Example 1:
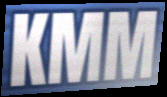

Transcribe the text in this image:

KMM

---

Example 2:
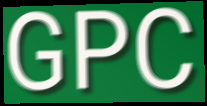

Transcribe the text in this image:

GPC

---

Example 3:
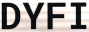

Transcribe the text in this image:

DYFI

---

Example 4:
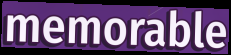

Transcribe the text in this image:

memorable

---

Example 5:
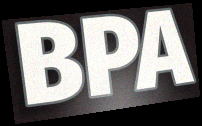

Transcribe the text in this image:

BPA